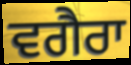
ਵਗੈਰਾ